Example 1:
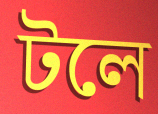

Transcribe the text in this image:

টলে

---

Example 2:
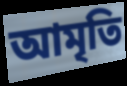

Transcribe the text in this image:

আমৃতি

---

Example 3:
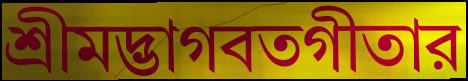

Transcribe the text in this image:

শ্রীমদ্ভাগবতগীতার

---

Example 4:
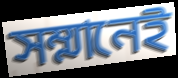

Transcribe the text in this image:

সম্মানেই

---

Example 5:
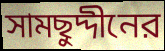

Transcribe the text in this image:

সামছুদ্দীনের